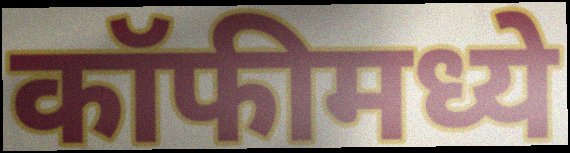
कॉफीमध्ये